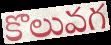
కొలువగ